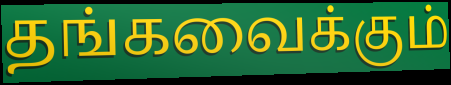
தங்கவைக்கும்